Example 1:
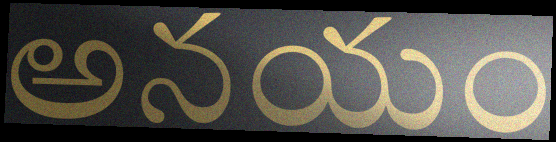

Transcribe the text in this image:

అనయం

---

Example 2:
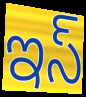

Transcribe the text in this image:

ఇస్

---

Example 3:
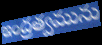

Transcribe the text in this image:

ఇంద్రత్వమును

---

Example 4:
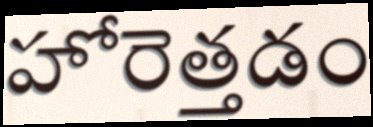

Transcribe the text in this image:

హోరెత్తడం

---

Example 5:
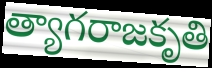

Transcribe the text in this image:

త్యాగరాజకృతి